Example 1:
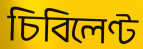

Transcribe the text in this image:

চিবিলেণ্ট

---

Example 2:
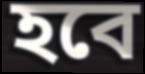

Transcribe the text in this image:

হবে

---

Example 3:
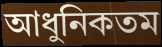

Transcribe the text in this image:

আধুনিকতম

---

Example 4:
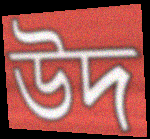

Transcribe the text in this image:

উদ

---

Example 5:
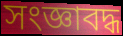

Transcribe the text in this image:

সংজ্ঞাবদ্ধ